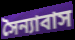
সৈন্যাবাস